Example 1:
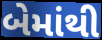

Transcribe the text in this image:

બેમાંથી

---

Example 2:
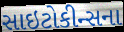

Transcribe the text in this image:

સાઇટોકીન્સના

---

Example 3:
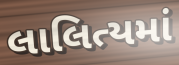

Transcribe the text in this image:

લાલિત્યમાં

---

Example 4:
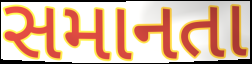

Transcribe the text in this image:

સમાનતા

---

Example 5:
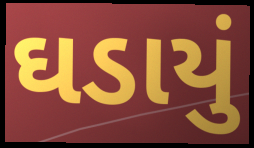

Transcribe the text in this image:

ઘડાયું